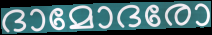
ദാമോദരോ